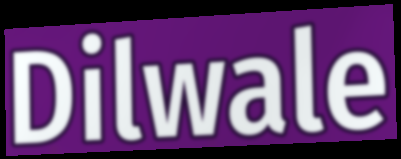
Dilwale